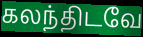
கலந்திடவே